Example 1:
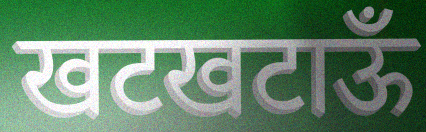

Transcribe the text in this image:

खटखटाऊँ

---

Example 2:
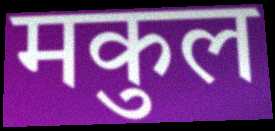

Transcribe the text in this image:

मकुल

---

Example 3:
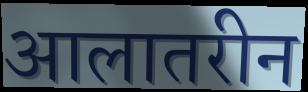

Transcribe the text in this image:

आलातरीन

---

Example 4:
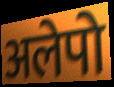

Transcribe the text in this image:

अलेपो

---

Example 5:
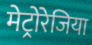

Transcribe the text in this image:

मेट्रोरेजिया